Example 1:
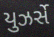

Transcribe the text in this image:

યુઝર્સે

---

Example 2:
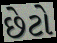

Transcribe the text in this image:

છેટો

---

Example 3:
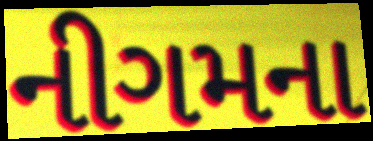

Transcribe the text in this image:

નીગમના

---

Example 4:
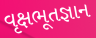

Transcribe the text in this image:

વૃક્ષભૂતજ્ઞાન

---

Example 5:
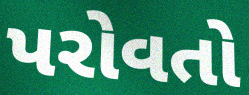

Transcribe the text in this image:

પરોવતો